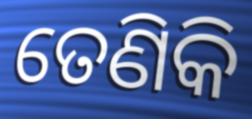
ତେଣିକି